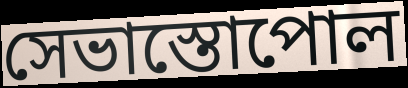
সেভাস্তোপোল